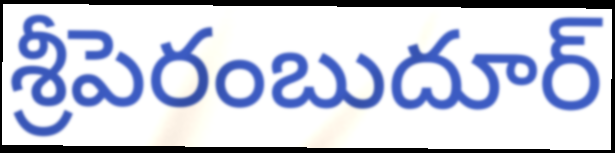
శ్రీపెరంబుదూర్